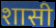
शासी